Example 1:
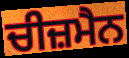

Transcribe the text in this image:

ਚੀਜ਼ਮੈਨ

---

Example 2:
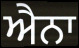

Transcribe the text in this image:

ਐਨਾ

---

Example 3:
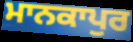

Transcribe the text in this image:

ਮਾਨਕਾਪੁਰ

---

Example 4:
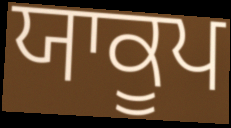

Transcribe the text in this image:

ਯਾਕੂਪ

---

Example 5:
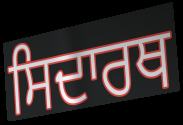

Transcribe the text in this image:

ਸਿਦਾਰਥ